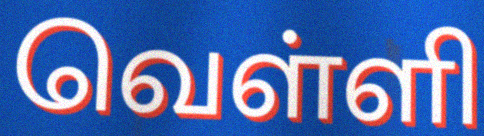
வெள்ளி